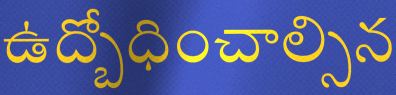
ఉద్బోధించాల్సిన